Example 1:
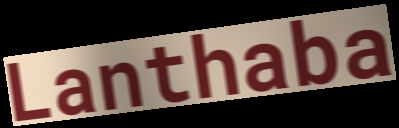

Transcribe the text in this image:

Lanthaba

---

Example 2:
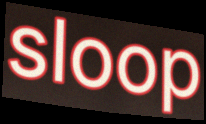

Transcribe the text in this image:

sloop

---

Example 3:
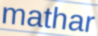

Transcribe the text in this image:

mathar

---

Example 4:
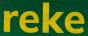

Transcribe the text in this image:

reke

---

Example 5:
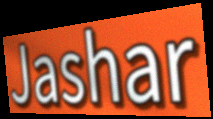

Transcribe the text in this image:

Jashar